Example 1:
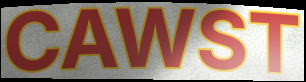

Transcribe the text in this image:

CAWST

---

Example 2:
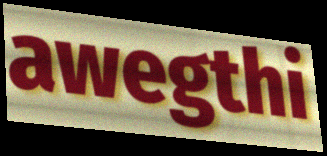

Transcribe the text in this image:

awegthi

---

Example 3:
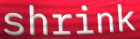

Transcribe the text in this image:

shrink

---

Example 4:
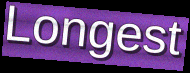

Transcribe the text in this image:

Longest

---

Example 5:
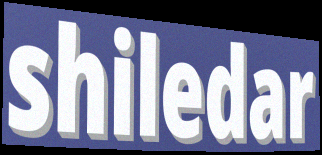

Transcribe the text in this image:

shiledar